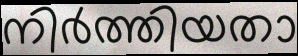
നിർത്തിയതാ